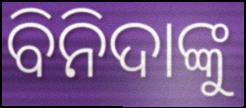
ବିନିଦାଙ୍କୁ